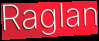
Raglan